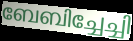
ബേബിച്ചേച്ചി